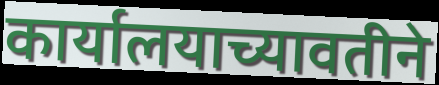
कार्यालयाच्यावतीने